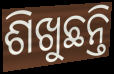
ଶିଖୁଛନ୍ତି